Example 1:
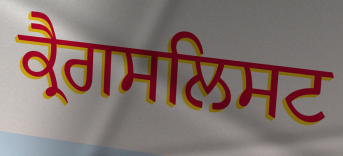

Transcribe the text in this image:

ਕ੍ਰੈਗਸਲਿਸਟ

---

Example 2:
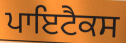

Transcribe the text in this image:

ਪਾਇਟੈਕਸ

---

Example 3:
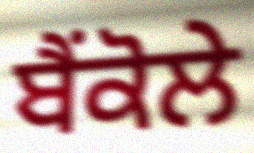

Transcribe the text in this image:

ਬੈਂਕੋਲੇ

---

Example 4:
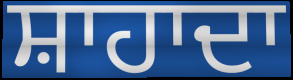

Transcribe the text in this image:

ਸ਼ਾਹਾਦਾ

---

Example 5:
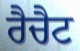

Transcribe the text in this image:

ਰੈਚੈਟ